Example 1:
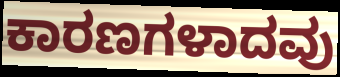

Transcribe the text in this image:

ಕಾರಣಗಳಾದವು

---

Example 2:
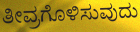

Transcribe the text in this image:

ತೀವ್ರಗೊಳಿಸುವುದು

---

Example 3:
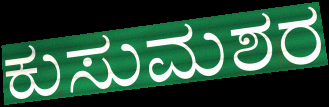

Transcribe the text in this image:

ಕುಸುಮಶರ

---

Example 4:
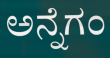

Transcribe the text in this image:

ಅನ್ನೆಗಂ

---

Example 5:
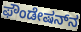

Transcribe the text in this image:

ಫೌಂಡೇಷನ್‌ನ